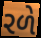
રળે